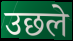
उछले